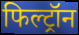
फिल्ट्रॉन